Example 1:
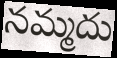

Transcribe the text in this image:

నమ్మదు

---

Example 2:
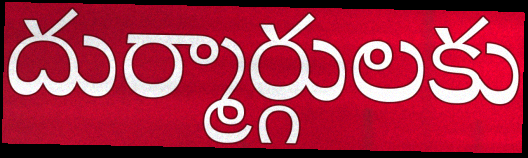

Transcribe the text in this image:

దుర్మార్గులకు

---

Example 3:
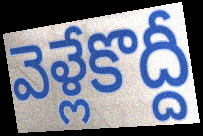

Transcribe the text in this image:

వెళ్లేకొద్దీ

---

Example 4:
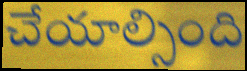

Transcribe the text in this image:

చేయాల్సింది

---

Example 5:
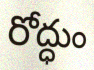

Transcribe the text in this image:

రోద్ధుం